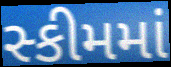
સ્કીમમાં